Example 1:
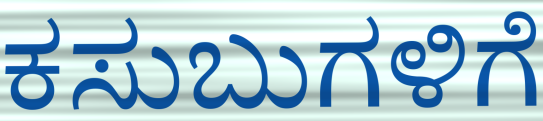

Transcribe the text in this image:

ಕಸುಬುಗಳಿಗೆ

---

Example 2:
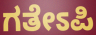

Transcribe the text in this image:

ಗತೇಽಪಿ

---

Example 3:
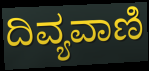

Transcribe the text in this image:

ದಿವ್ಯವಾಣಿ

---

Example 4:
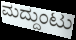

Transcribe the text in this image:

ಮದ್ದುಂಟು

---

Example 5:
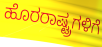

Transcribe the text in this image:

ಹೊರರಾಷ್ಟ್ರಗಳಿಗೆ